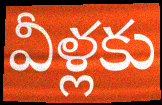
వీళ్లకు